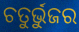
ଚତୁର୍ଭୁଜର